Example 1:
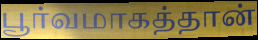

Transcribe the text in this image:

பூர்வமாகத்தான்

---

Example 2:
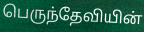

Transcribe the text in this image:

பெருந்தேவியின்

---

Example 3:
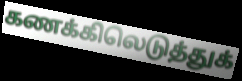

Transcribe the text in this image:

கணக்கிலெடுத்துக்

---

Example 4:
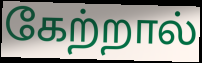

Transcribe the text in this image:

கேற்றால்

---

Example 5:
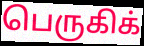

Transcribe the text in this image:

பெருகிக்